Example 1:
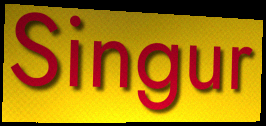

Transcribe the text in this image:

Singur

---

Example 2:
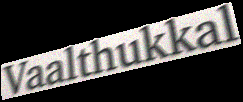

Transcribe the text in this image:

Vaalthukkal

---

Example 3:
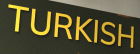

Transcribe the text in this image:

TURKISH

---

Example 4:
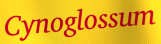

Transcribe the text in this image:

Cynoglossum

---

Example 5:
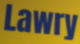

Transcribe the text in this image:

Lawry